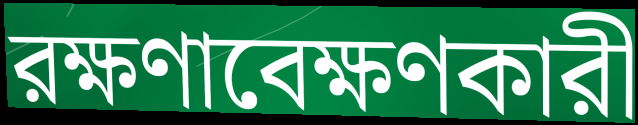
রক্ষণাবেক্ষণকারী